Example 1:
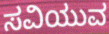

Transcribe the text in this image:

ಸವಿಯುವ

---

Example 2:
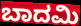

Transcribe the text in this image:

ಬಾದಮಿ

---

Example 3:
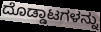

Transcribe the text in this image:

ದೊಡ್ಡಾಟಗಳನ್ನು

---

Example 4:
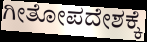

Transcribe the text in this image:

ಗೀತೋಪದೇಶಕ್ಕೆ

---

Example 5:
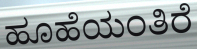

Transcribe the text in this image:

ಹೂಹೆಯಂತಿರೆ